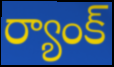
ర్యాంక్